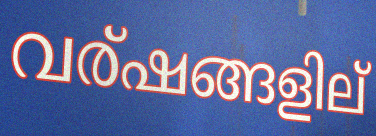
വര്ഷങ്ങളില്